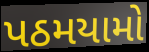
પઠમયામો